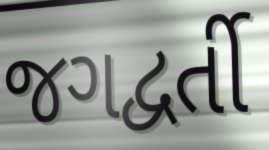
જગદ્વર્તી